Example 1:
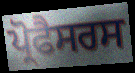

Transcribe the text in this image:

ਪ੍ਰੋਫੈਸਰਸ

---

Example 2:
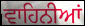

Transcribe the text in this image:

ਵਾਹਿਨੀਆਂ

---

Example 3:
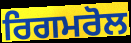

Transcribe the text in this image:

ਰਿਗਮਰੋਲ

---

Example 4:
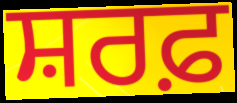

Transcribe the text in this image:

ਸ਼ਰਫ਼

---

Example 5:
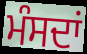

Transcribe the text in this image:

ਮੰਸਦਾਂ